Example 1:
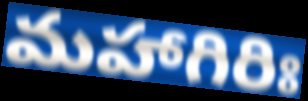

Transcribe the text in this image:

మహాగిరిః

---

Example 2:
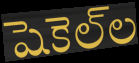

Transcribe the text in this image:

షెకెల్‌ల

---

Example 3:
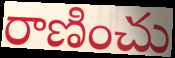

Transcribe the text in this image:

రాణించు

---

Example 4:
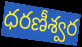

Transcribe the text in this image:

ధరణీశ్వర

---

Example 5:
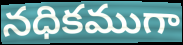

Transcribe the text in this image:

నధికముగా